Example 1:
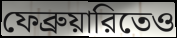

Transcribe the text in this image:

ফেব্রুয়ারিতেও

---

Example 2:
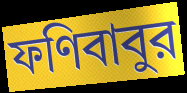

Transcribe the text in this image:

ফণিবাবুর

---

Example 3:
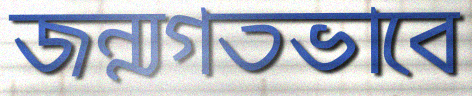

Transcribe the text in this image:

জন্মগতভাবে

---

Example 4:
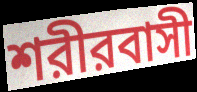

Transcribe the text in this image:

শরীরবাসী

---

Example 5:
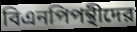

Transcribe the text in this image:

বিএনপিপন্থীদের